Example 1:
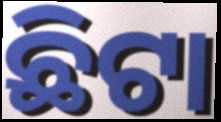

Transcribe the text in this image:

ଛିଟା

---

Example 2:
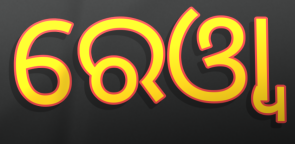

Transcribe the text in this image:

ରେଓ୍ବା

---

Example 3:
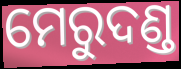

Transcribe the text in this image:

ମେରୁଦଣ୍ଡ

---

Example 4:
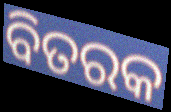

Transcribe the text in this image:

ବିତରକ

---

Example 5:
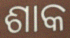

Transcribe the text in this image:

ଶାକ